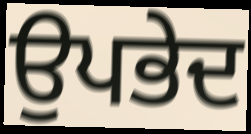
ਉਪਭੇਦ